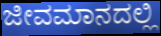
ಜೀವಮಾನದಲ್ಲಿ